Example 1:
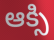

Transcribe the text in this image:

ఆక్సి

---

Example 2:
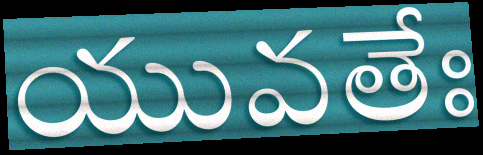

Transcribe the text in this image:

యువతేః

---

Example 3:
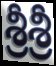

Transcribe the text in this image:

శ్రీశ్రీ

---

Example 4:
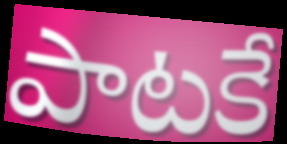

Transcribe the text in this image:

పాటకే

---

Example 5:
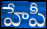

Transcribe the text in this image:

హేపీ